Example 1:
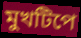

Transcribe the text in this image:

মুখটিপে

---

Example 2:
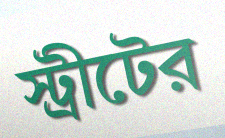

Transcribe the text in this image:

স্ট্রীটের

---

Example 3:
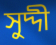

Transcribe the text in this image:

সুদ্দী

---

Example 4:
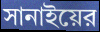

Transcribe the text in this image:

সানাইয়ের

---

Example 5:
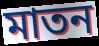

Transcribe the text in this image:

মাতন